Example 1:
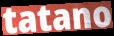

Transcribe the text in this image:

tatano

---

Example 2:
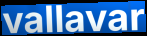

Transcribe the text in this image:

vallavar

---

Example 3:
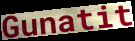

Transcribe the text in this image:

Gunatit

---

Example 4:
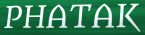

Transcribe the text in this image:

PHATAK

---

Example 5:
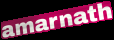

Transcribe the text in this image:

amarnath